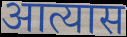
आत्यास